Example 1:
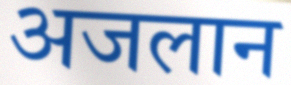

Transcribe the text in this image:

अजलान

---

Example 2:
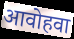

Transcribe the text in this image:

आवोहवा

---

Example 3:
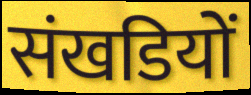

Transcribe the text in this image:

संखडियों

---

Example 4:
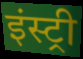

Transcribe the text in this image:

इंस्ट्री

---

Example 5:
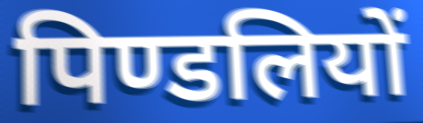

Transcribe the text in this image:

पिण्डलियों